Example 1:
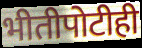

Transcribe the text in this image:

भीतीपोटीही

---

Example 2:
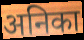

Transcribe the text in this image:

अनिका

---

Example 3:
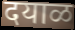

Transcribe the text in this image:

दयाळ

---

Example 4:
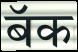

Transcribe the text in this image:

बॅक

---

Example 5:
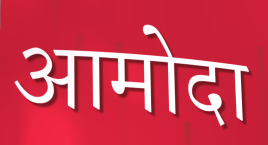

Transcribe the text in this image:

आमोदा